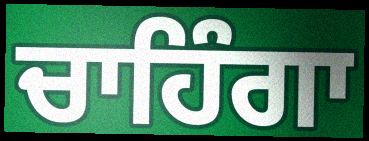
ਚਾਹਿੰਗਾ